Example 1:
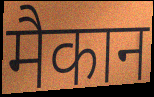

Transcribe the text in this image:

मैकान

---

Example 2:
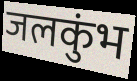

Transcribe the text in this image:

जलकुंभ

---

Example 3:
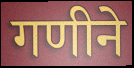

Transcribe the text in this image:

गणीने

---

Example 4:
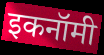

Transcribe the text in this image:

इकनॉमी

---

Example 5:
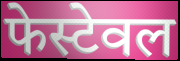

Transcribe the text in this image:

फेस्टेवल